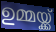
ഉമ്മയ്ക്ക്